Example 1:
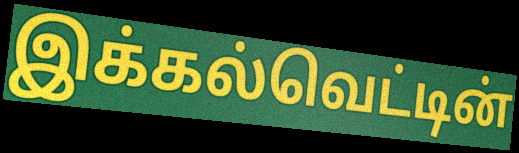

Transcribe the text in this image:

இக்கல்வெட்டின்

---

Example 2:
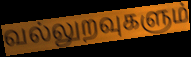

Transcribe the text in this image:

வல்லுறவுகளும்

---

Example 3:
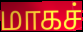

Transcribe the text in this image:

மாகச்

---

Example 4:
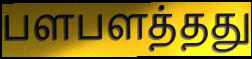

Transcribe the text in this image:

பளபளத்தது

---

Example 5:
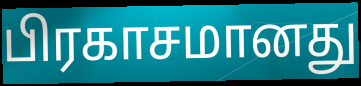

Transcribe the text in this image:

பிரகாசமானது